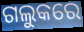
ଗଲୁକରେ